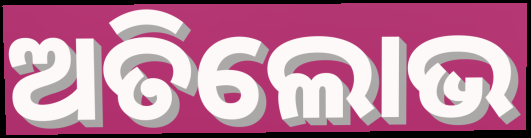
ଅତିଲୋଭ